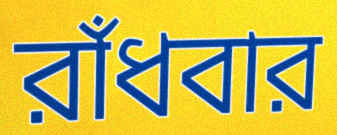
রাঁধবার